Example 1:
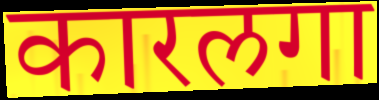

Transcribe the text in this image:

कारलगा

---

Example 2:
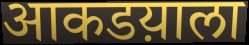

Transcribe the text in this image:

आकडय़ाला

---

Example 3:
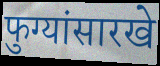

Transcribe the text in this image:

फुग्यांसारखे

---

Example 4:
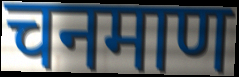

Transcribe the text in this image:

चनमाण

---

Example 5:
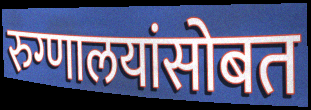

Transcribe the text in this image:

रुग्णालयांसोबत